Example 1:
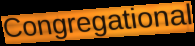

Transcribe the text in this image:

Congregational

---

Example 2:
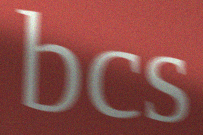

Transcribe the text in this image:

bcs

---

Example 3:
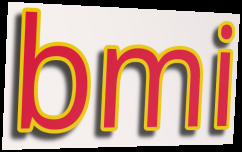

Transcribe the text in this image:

bmi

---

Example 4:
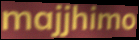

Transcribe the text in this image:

majjhimo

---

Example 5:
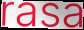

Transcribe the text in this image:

rasa